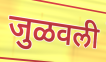
जुळवली